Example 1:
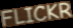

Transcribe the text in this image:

FLICKR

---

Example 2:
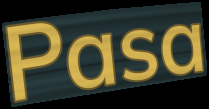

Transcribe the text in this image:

Pasa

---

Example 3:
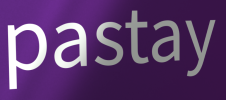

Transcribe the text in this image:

pastay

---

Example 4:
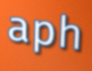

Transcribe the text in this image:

aph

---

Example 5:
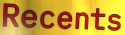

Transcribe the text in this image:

Recents